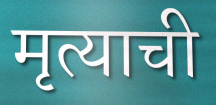
मृत्याची